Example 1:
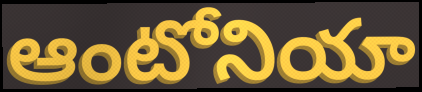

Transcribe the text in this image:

ఆంటోనియా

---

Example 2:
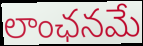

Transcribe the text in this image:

లాంఛనమే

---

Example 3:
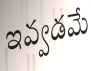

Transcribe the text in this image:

ఇవ్వడమే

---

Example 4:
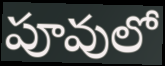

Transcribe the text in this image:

పూవులో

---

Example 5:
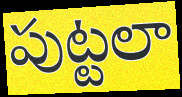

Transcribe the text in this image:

పుట్టలా